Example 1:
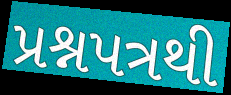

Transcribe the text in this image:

પ્રશ્નપત્રથી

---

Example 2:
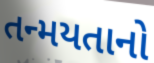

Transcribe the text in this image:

તન્મયતાનો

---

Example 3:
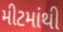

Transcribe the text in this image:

મીટમાંથી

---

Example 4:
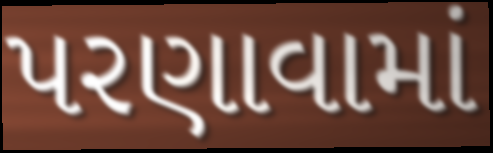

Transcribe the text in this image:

પરણાવામાં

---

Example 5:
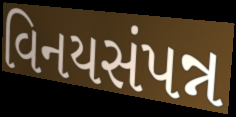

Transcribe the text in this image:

વિનયસંપન્ન